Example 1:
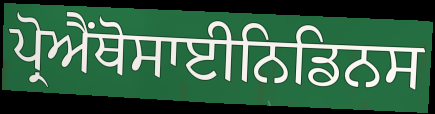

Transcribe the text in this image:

ਪ੍ਰੋਐਂਥੋਸਾਈਨਿਡਿਨਸ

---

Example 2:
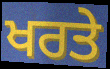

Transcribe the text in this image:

ਖਰਤੇ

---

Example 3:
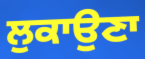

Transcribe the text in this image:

ਲੁਕਾਉਣਾ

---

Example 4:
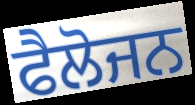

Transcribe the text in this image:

ਫੈਲੋਜਨ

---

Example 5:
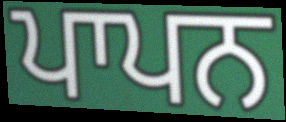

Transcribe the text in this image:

ਪਾਪਨ